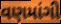
વણમાંગી